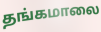
தங்கமாலை